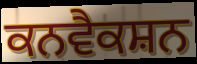
ਕਨਵੈਕਸ਼ਨ